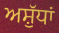
ਅਸ਼ੁੱਧਾਂ